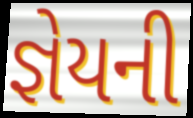
જ્ઞેયની